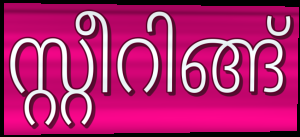
സ്റ്റീറിങ്ങ്